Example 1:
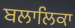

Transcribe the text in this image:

ਬਲਾਲਿਕਾ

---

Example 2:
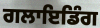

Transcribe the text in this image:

ਗਲਾਇਡਿੰਗ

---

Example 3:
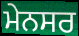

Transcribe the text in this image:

ਮੇਨਸਰ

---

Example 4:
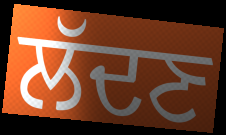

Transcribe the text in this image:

ਲੱਦਣ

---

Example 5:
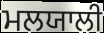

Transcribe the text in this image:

ਮਲਯਾਲੀ